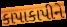
કાપાકાપીને